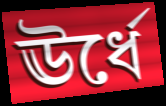
ঊর্ধে